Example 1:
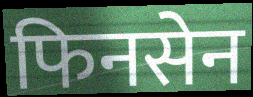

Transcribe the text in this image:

फिनसेन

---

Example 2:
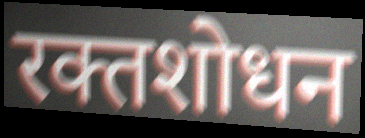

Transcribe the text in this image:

रक्तशोधन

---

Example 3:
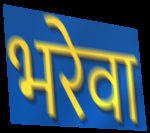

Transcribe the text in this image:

भरेवा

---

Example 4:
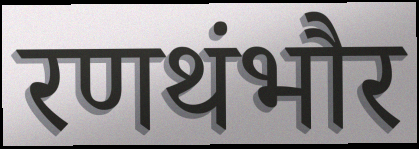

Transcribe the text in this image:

रणथंभौर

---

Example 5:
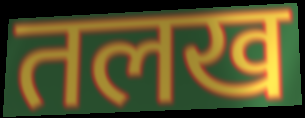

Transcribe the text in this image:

तलख